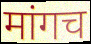
मांगच